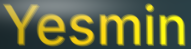
Yesmin